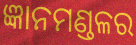
ଜ୍ଞାନମଣ୍ଡଳର